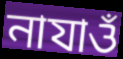
নাযাওঁ